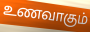
உணவாகும்